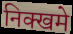
निक्खमे